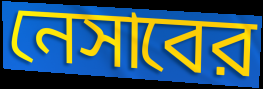
নেসাবের